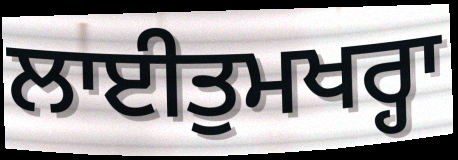
ਲਾਈਤੁਮਖਰ੍ਹਾ